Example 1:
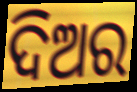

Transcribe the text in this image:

ଦିଅର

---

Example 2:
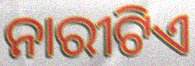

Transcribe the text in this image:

ନାରୀଟିଏ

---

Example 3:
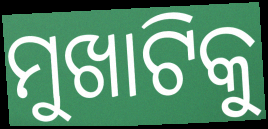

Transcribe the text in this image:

ମୁଖାଟିକୁ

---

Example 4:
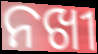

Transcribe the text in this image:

ନଖୀ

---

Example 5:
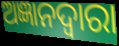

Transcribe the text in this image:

ଅଜ୍ଞାନଦ୍ଵାରା